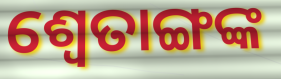
ଶ୍ୱେତାଙ୍ଗଙ୍କ